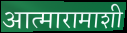
आत्मारामाशी